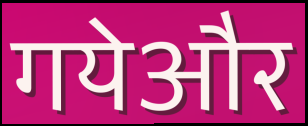
गयेऔर